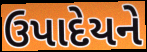
ઉપાદેયને